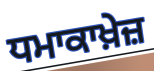
ਧਮਾਕਾਖ਼ੇਜ਼